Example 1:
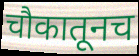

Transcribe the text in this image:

चौकातूनच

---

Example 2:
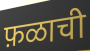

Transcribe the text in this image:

फ़ळाची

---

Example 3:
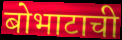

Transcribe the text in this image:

बोभाटाची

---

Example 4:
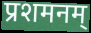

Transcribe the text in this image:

प्रशमनम्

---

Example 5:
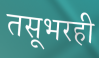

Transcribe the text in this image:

तसूभरही